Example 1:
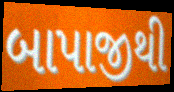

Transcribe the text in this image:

બાપાજીથી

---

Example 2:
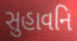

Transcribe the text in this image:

સુહાવનિ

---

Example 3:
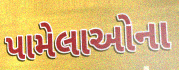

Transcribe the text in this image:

પામેલાઓના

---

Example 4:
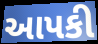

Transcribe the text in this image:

આપકી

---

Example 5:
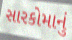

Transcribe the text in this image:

સારકોમાનું